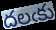
దలఁకు